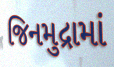
જિનમુદ્રામાં